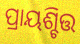
ପ୍ରାୟଶ୍ଚିତ୍ତ